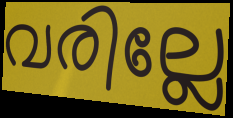
വരില്ലേ